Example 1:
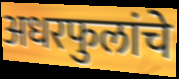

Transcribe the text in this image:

अधरफुलांचे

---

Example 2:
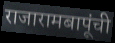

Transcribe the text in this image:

राजारामबापूंची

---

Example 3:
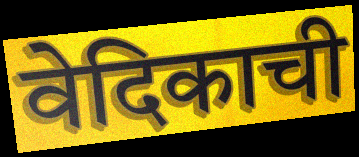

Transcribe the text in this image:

वेदिकाची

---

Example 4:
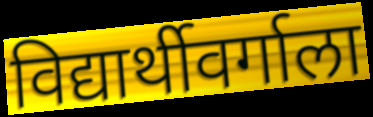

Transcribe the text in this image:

विद्यार्थीवर्गाला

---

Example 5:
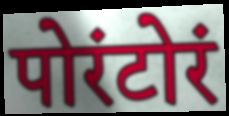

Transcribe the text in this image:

पोरंटोरं